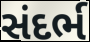
સંદર્ભ